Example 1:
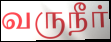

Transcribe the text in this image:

வருநீர்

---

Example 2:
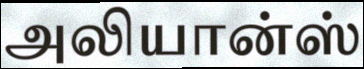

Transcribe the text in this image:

அலியான்ஸ்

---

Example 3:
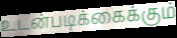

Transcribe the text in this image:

உடன்படிக்கைக்கும்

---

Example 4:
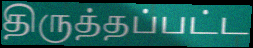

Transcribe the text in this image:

திருத்தப்பட்ட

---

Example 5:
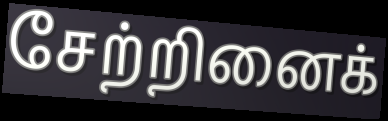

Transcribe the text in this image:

சேற்றினைக்